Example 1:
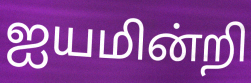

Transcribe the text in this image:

ஐயமின்றி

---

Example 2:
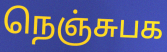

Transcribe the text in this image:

நெஞ்சுபக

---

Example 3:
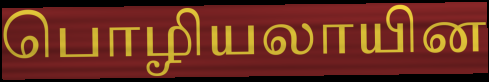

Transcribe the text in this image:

பொழியலாயின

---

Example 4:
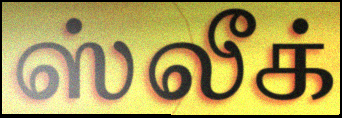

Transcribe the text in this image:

ஸ்லீக்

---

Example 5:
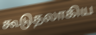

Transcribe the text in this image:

கூடுதலாகிய